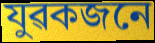
যুৱকজনে